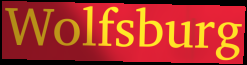
Wolfsburg